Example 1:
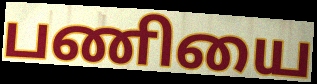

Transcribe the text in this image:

பணியை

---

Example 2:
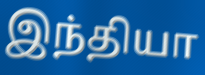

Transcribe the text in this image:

இந்தியா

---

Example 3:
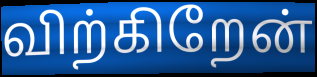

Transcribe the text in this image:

விற்கிறேன்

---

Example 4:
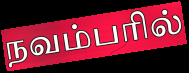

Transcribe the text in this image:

நவம்பரில்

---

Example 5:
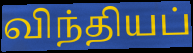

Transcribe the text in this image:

விந்தியப்